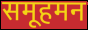
समूहमन